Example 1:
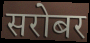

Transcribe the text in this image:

सरोबर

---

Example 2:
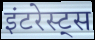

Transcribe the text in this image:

इंटरेस्ट्स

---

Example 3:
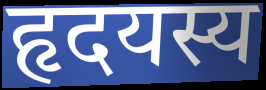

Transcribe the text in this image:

हृदयस्य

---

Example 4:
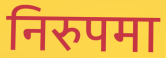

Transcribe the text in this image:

निरुपमा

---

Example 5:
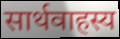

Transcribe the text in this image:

सार्थवाहस्य